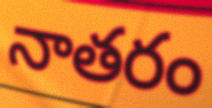
నాతరం